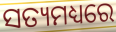
ସତ୍ୟମଧ୍ୟରେ